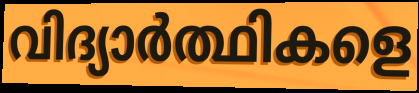
വിദ്യാർത്ഥികളെ